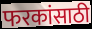
फरकांसाठी